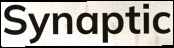
Synaptic